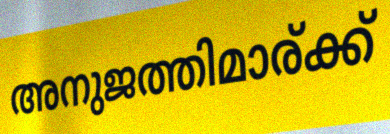
അനുജത്തിമാര്ക്ക്